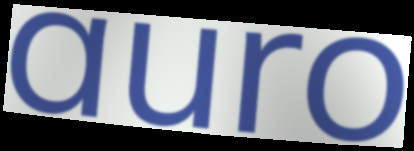
auro